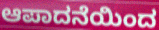
ಆಪಾದನೆಯಿಂದ